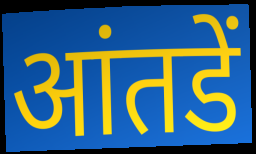
आंतडें